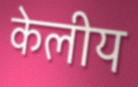
केलीय